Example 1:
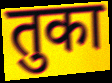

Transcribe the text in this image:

तुका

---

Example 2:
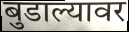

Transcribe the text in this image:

बुडाल्यावर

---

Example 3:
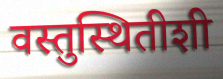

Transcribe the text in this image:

वस्तुस्थितीशी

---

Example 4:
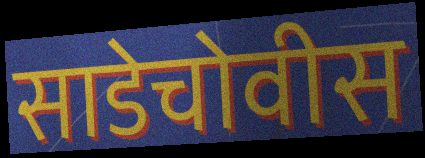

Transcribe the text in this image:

साडेचोवीस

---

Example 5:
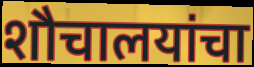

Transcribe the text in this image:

शौचालयांचा